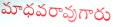
మాధవరావుగారు